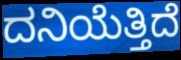
ದನಿಯೆತ್ತಿದೆ